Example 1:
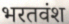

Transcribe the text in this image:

भरतवंश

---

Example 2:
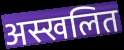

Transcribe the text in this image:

अस्खलित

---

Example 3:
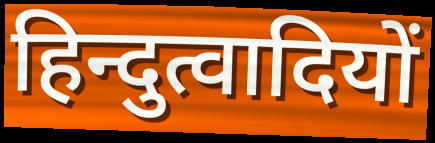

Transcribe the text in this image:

हिन्दुत्वादियों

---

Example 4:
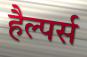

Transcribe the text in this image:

हैल्पर्स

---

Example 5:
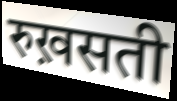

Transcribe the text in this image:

रुख़सती